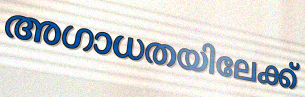
അഗാധതയിലേക്ക്